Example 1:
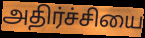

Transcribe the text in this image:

அதிர்ச்சியை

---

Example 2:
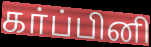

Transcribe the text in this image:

கர்ப்பினி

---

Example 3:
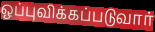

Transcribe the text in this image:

ஒப்புவிக்கப்படுவார்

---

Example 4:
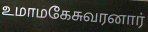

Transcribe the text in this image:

உமாமகேசுவரனார்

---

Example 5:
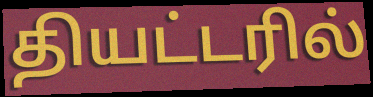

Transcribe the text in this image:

தியட்டரில்